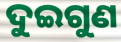
ଦୁଇଗୁଣ